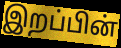
இறப்பின்